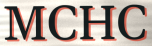
MCHC